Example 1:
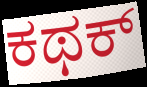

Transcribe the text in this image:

ಕಥಕ್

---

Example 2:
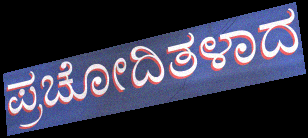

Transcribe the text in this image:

ಪ್ರಚೋದಿತಳಾದ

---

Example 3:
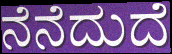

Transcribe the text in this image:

ನೆನೆದುದೆ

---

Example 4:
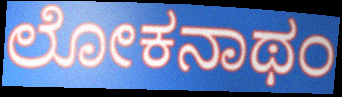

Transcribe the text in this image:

ಲೋಕನಾಥಂ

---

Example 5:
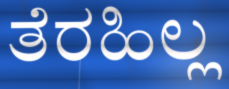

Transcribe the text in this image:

ತೆರಹಿಲ್ಲ